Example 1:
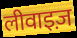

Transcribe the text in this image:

लीवाइज़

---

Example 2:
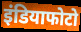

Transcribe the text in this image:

इंडियाफोटो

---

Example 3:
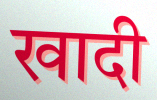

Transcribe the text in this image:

खादी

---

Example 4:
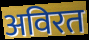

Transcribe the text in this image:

अविरत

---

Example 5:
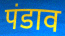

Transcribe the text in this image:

पंडाव